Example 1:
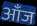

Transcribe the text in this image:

आँज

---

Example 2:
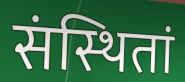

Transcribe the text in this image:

संस्थितां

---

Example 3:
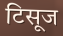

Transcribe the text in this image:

टिसूज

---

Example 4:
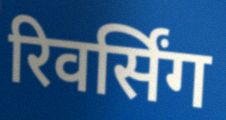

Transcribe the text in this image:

रिवर्सिंग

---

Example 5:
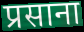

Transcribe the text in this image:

प्रसाना